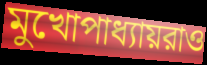
মুখোপাধ্যায়রাও